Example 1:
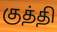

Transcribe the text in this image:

குத்தி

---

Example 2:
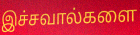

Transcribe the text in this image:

இச்சவால்களை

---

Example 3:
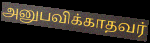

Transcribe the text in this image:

அனுபவிக்காதவர்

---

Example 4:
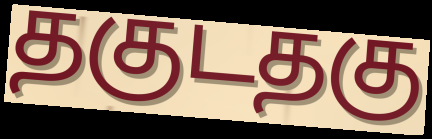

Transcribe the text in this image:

தகுடதகு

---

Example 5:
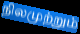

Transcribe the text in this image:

நிலமுற்றும்